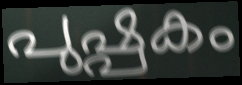
പുഷ്പകം